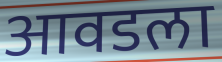
आवडला